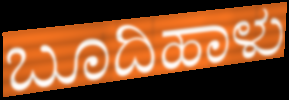
ಬೂದಿಹಾಳು